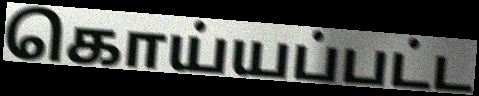
கொய்யப்பட்ட